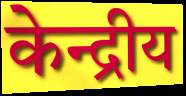
केन्द्रीय